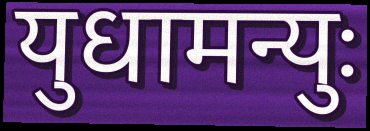
युधामन्युः